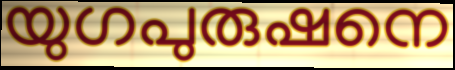
യുഗപുരുഷനെ